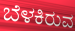
ಬೆಳಕಿರುವ